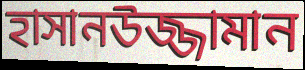
হাসানউজ্জামান